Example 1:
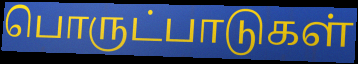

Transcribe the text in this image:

பொருட்பாடுகள்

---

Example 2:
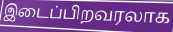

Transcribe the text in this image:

இடைப்பிறவரலாக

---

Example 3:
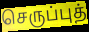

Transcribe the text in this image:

செருப்புத்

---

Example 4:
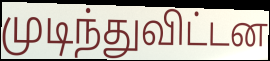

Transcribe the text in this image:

முடிந்துவிட்டன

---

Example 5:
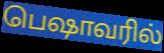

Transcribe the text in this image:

பெஷாவரில்